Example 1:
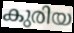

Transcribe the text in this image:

കുരിയ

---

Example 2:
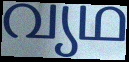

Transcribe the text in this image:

വ്യഥ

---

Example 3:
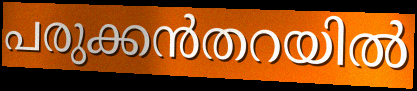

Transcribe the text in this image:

പരുക്കൻതറയിൽ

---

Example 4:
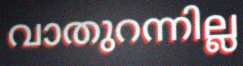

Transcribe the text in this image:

വാതുറന്നില്ല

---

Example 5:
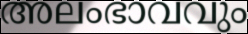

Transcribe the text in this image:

അലംഭാവവും